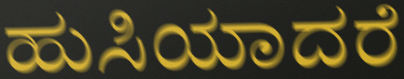
ಹುಸಿಯಾದರೆ